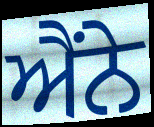
ਐਂਨੇ